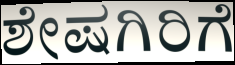
ಶೇಷಗಿರಿಗೆ